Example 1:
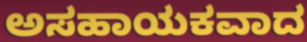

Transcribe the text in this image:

ಅಸಹಾಯಕವಾದ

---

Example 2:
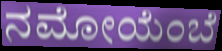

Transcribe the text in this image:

ನಮೋಯೆಂಬೆ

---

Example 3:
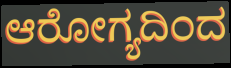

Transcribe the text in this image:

ಆರೋಗ್ಯದಿಂದ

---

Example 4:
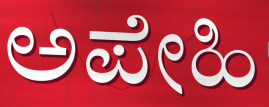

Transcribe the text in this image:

ಅಪೇಹಿ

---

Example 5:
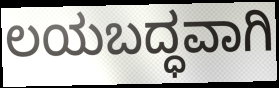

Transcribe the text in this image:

ಲಯಬದ್ಧವಾಗಿ